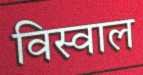
विस्वाल